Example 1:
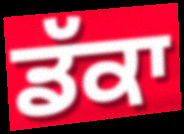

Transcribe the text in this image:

ਡੱਕਾ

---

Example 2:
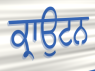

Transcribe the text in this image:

ਕ੍ਰਾਉਟਨ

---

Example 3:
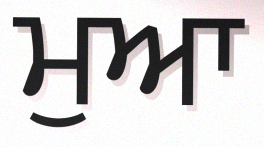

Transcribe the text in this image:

ਮੁਆ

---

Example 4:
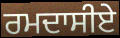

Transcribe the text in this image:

ਰਮਦਾਸੀਏ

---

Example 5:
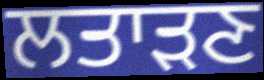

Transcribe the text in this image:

ਲਤਾੜਣ